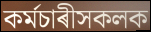
কৰ্মচাৰীসকলক